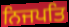
ਨਿਜਪਤਿ